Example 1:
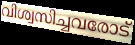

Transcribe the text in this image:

വിശ്വസിച്ചവരോട്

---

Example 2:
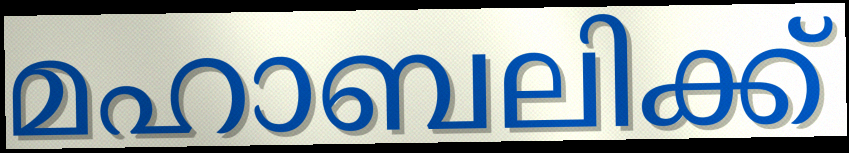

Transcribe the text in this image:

മഹാബലിക്ക്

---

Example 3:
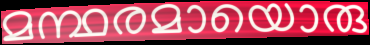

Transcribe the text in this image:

മന്ഥരമായൊരു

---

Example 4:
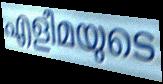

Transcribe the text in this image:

എളീമയുടെ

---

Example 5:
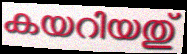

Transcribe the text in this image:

കയറിയതു്